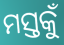
ମସ୍ତକୁଁ